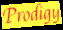
Prodigy